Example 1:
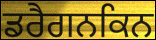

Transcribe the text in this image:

ਡਰੈਗਨਕਿਨ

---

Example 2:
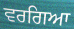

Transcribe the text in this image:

ਵਰਗਿਆ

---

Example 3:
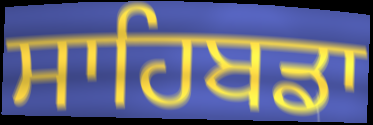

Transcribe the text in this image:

ਸਾਹਿਬਡਾ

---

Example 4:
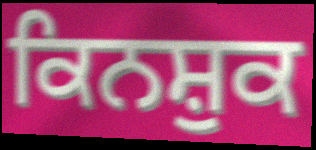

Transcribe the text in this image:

ਕਿਨਸ਼ੁਕ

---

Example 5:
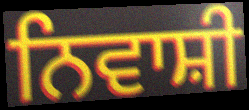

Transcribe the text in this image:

ਨਿਵਾਸ਼ੀ